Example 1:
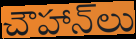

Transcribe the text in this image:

చౌహాన్‌లు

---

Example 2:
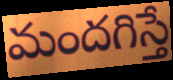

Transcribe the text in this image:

మందగిస్తే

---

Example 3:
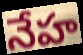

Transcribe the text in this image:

నేహ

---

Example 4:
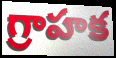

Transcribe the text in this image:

గ్రాహక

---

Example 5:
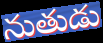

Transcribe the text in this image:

నుతుడు